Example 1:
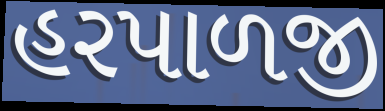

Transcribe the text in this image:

હરપાળજી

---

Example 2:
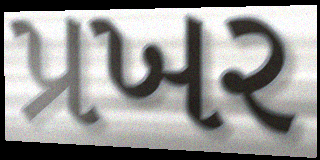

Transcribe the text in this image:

પ્રખર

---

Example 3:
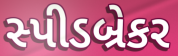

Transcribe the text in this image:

સ્પીડબ્રેકર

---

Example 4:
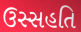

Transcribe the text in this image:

ઉસ્સહતિ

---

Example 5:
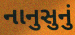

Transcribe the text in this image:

નાનુસુનું